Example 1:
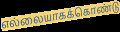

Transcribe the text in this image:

எல்லையாகக்கொண்டு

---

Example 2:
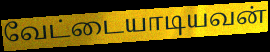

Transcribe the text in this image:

வேட்டையாடியவன்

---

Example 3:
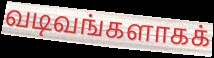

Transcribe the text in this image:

வடிவங்களாகக்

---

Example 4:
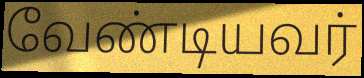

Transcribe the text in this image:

வேண்டியவர்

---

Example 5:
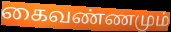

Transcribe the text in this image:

கைவண்ணமும்